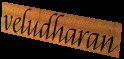
veludharan